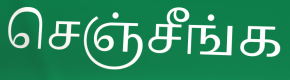
செஞ்சீங்க